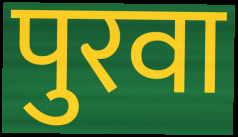
पुरवा